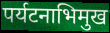
पर्यटनाभिमुख